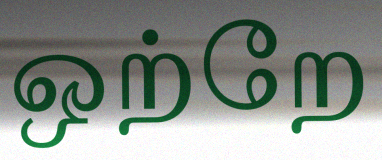
ஒற்றே